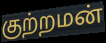
குற்றமன்